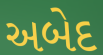
અબેદ